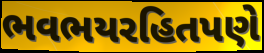
ભવભયરહિતપણે